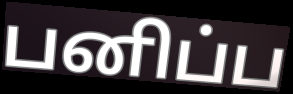
பனிப்ப